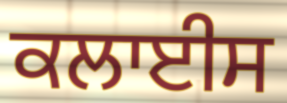
ਕਲਾਈਸ